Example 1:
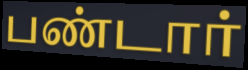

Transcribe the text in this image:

பண்டார்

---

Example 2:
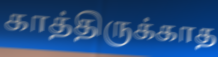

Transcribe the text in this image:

காத்திருக்காத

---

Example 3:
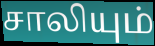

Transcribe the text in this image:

சாலியும்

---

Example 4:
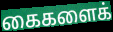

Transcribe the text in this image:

கைகளைக்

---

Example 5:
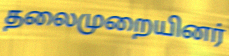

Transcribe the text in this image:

தலைமுறையினர்